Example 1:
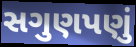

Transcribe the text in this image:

સગુણપણું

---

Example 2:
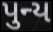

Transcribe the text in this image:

પુન્ય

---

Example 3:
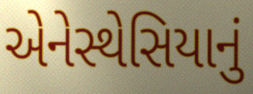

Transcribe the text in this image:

એનેસ્થેસિયાનું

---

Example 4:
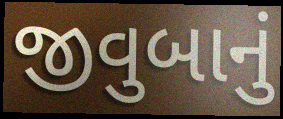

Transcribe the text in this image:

જીવુબાનું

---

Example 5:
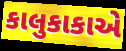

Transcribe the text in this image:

કાલુકાકાએ